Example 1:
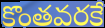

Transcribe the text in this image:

కొంతవరకే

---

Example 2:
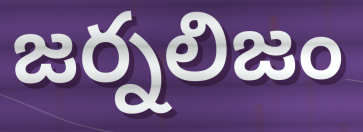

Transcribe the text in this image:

జర్నలిజం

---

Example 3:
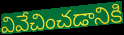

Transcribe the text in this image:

వివేచించడానికి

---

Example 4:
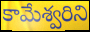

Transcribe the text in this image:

కామేశ్వరిని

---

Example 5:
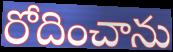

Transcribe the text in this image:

రోదించాను